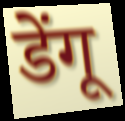
डेंगू